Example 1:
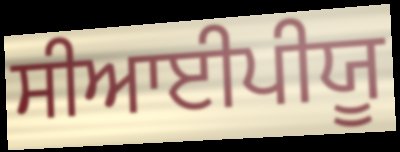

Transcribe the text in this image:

ਸੀਆਈਪੀਯੂ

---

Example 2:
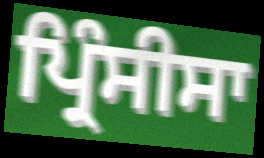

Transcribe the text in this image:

ਪ੍ਰਿੰਸੀਸਾ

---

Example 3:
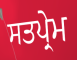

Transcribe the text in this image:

ਸਤਪ੍ਰੇਮ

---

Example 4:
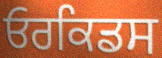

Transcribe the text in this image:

ਓਰਕਿਡਸ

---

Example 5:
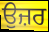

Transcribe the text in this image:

ਉਜ਼ਰ